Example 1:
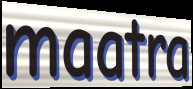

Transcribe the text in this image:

maatra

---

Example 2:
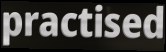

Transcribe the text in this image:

practised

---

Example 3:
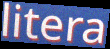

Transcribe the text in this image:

litera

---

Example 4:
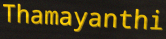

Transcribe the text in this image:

Thamayanthi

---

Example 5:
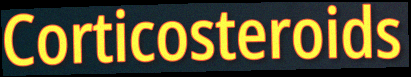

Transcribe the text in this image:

Corticosteroids